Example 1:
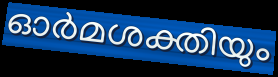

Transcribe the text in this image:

ഓർമശക്തിയും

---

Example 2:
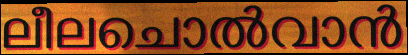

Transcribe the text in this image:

ലീലചൊൽവാൻ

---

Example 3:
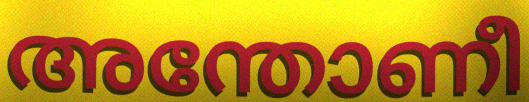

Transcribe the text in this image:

അന്തോണീ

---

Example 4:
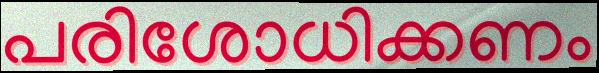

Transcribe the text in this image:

പരിശോധിക്കണം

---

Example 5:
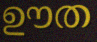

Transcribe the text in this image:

ഊത